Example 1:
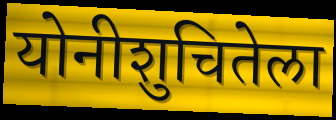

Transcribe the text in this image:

योनीशुचितेला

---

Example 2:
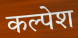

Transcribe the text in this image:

कल्पेश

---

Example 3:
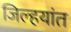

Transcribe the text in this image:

जिल्हयांत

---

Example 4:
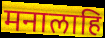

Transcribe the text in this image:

मनालाहि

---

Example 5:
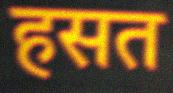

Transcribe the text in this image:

हसत